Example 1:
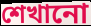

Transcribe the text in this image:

শেখানো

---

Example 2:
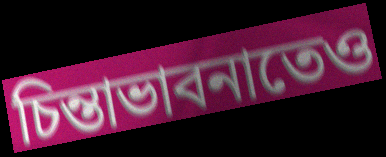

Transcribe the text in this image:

চিন্তাভাবনাতেও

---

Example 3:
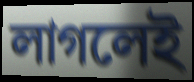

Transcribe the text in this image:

লাগলেই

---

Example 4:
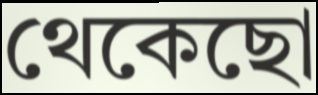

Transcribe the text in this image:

থেকেছো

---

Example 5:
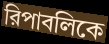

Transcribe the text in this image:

রিপাবলিকে